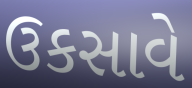
ઉકસાવે